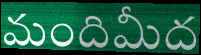
మందిమీద